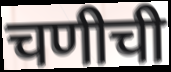
चणीची